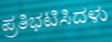
ಪ್ರತಿಭಟಿಸಿದಳು